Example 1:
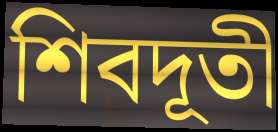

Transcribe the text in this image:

শিবদূতী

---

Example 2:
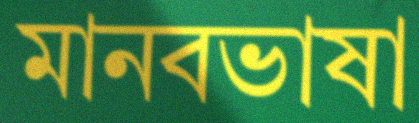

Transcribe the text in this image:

মানবভাষা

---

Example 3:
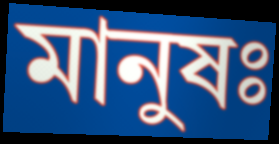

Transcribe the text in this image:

মানুষঃ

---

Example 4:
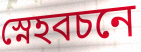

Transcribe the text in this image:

স্নেহবচনে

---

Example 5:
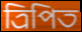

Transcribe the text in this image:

ত্রিপিত